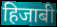
हिजाबी